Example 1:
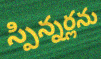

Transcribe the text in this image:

స్పిన్నర్లను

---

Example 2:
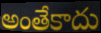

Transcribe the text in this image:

అంతేకాదు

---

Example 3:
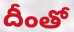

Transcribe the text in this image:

దీంతో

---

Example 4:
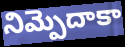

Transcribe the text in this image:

నిమ్పెదాకా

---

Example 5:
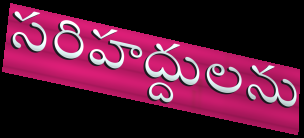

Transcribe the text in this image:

సరిహద్దులను